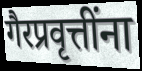
गैरप्रवृत्तींना